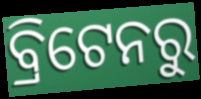
ବ୍ରିଟେନରୁ